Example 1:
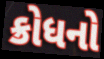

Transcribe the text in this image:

ક્રોધનો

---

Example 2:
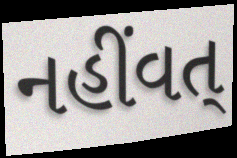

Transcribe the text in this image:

નહીંવત્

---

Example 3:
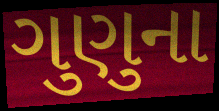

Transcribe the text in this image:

ગુણુના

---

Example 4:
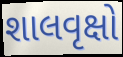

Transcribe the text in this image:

શાલવૃક્ષો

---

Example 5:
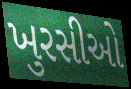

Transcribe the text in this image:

ખુરસીઓ